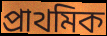
প্রাথমিক